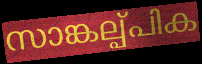
സാങ്കല്പ്പിക